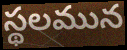
స్థలమున